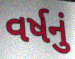
વર્ષનું